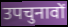
उपचुनावों